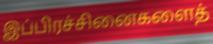
இப்பிரச்சினைகளைத்